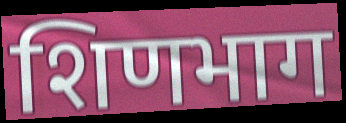
शिणभाग